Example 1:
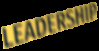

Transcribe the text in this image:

LEADERSHIP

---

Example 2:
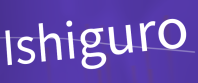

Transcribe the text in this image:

Ishiguro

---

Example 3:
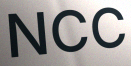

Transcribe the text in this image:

NCC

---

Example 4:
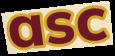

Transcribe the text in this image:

asc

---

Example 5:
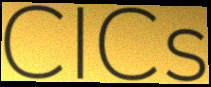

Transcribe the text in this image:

CICs